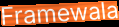
Framewala